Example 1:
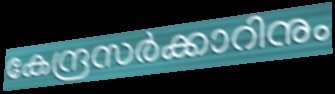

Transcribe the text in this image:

കേന്ദ്രസർക്കാറിനും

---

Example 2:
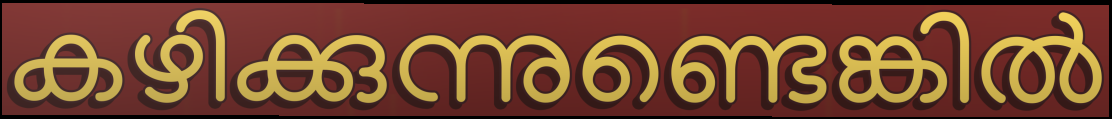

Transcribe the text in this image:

കഴിക്കുന്നുണ്ടെങ്കിൽ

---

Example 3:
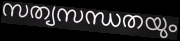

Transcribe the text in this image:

സത്യസന്ധതയും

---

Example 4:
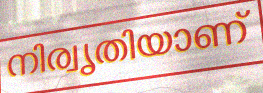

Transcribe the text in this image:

നിര്വൃതിയാണ്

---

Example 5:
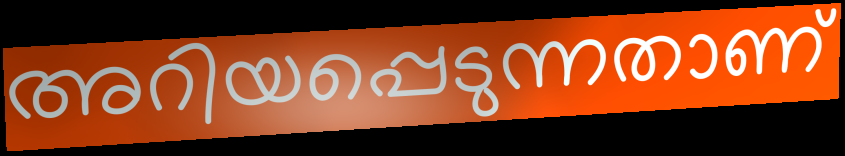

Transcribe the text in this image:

അറിയപ്പെടുന്നതാണ്